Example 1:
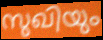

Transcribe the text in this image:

സുഖിയും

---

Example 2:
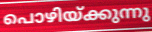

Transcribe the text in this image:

പൊഴിയ്ക്കുന്നു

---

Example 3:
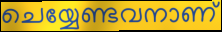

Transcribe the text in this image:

ചെയ്യേണ്ടവനാണ്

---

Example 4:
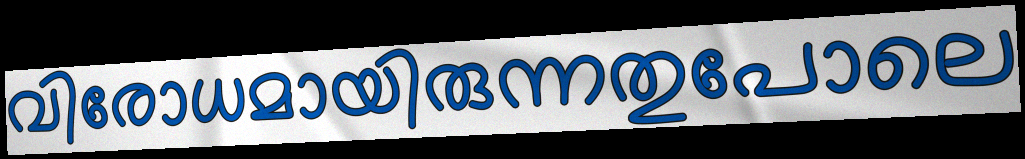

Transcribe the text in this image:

വിരോധമായിരുന്നതുപോലെ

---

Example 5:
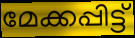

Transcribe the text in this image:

മേക്കപ്പിട്ട്